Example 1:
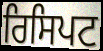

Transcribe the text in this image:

ਰਿਸਿਪਟ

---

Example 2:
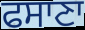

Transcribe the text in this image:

ਫਸਾਣਾ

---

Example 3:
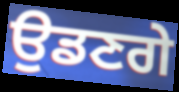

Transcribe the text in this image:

ਉਡਣਗੇ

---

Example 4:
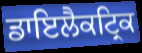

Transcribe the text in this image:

ਡਾਇਲੈਕਟ੍ਰਿਕ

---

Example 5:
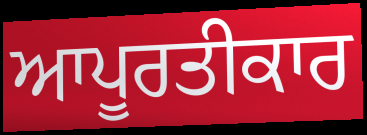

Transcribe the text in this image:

ਆਪੂਰਤੀਕਾਰ